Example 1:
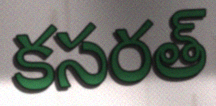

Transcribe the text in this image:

కసరత్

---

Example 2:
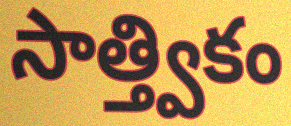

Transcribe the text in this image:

సాత్త్వికం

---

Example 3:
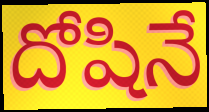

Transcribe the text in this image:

దోషినే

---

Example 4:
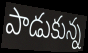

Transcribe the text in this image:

పాడుకున్న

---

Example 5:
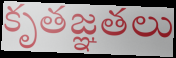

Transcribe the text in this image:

కృతజ్ఞతలు